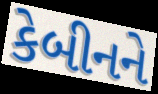
કેબીનને